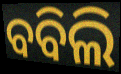
ବବିଲି